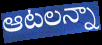
ఆటలన్నా